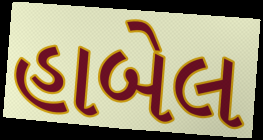
હાબેલ